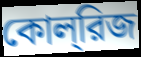
কোল্‌রিজ